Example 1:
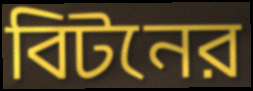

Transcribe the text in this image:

বিটনের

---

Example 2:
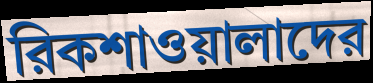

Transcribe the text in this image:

রিকশাওয়ালাদের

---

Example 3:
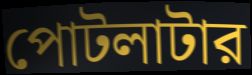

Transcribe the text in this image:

পোটলাটার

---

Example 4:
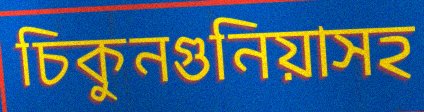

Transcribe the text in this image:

চিকুনগুনিয়াসহ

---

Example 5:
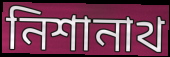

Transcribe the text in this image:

নিশানাথ